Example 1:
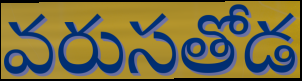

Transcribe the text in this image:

వరుసతోడ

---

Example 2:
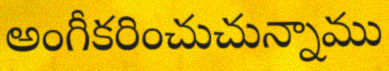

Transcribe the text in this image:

అంగీకరించుచున్నాము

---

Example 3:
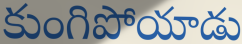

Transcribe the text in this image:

కుంగిపోయాడు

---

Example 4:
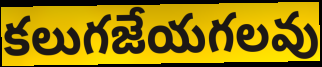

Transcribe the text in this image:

కలుగజేయగలవు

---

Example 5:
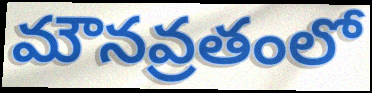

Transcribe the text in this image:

మౌనవ్రతంలో